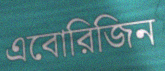
এবোরিজিন